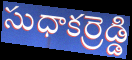
సుధాకర్రెడ్డి